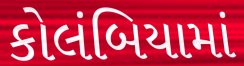
કોલંબિયામાં